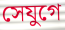
সেযুগে